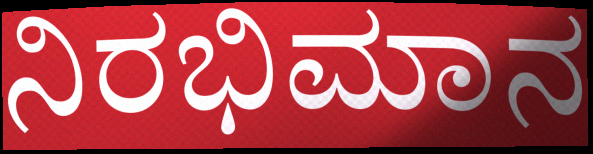
ನಿರಭಿಮಾನ